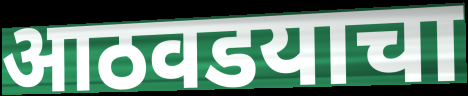
आठवडयाचा